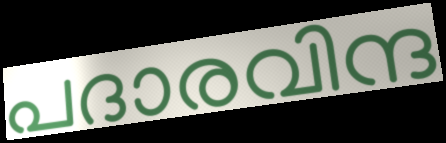
പദാരവിന്ദ